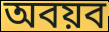
অবয়ব